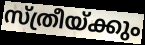
സ്ത്രീയ്ക്കും